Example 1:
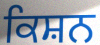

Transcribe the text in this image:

ਕਿਸ਼ਨ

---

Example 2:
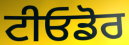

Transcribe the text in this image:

ਟੀਓਡੋਰ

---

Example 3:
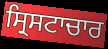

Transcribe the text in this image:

ਸ੍ਰਿਸਟਾਚਾਰ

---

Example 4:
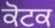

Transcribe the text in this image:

ਕੋਟਕ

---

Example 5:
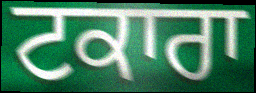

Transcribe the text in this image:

ਟਕਾਰਾ